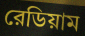
রেডিয়াম